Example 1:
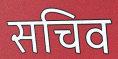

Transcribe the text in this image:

सचिव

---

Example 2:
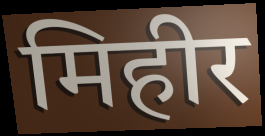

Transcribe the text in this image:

मिहीर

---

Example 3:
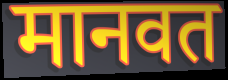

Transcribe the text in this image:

मानवत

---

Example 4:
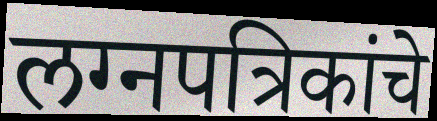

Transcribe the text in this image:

लग्नपत्रिकांचे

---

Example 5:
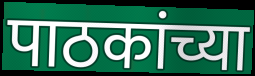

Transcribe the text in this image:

पाठकांच्या